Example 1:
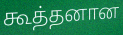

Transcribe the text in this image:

கூத்தனான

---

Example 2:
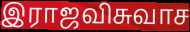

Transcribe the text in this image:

இராஜவிசுவாச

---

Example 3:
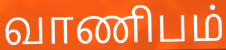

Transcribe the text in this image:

வாணிபம்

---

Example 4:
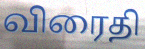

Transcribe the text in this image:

விரைதி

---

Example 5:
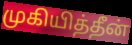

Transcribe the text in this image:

முகியித்தீன்